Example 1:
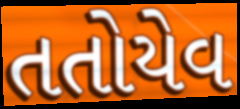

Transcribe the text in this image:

તતોયેવ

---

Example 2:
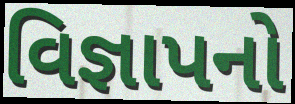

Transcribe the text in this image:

વિજ્ઞાપનો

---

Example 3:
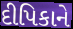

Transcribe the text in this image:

દીપિકાને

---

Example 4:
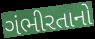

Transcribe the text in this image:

ગંભીરતાનો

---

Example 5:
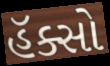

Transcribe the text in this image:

હૅક્સો